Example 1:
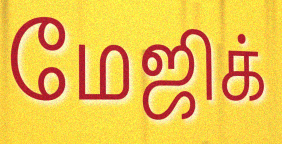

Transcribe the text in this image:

மேஜிக்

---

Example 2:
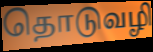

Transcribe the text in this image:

தொடுவழி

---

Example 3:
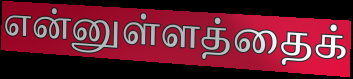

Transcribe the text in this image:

என்னுள்ளத்தைக்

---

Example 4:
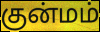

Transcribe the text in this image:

குன்மம்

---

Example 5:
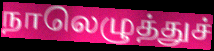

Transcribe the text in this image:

நாலெழுத்துச்